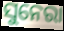
ସୁନେରା